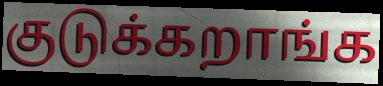
குடுக்கறாங்க